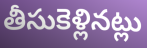
తీసుకెళ్లినట్లు